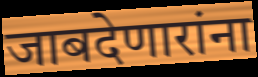
जाबदेणारांना